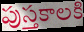
పుస్తకాలకి